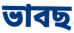
ভাবছ